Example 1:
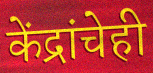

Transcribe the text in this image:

केंद्रांचेही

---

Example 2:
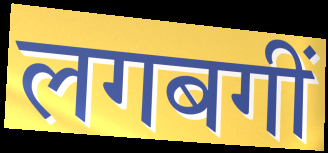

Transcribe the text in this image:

लगबगीं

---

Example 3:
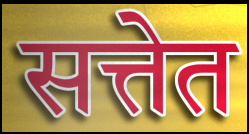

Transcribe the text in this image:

सत्तेत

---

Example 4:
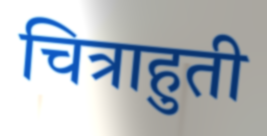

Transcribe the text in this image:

चित्राहुती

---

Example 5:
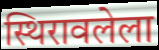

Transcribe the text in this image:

स्थिरावलेला